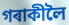
গৰাকীলৈ